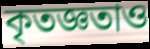
কৃতজ্ঞতাও